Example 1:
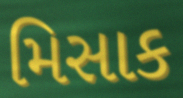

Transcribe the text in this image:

મિસાક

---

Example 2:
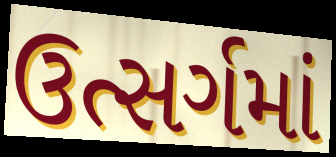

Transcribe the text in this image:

ઉત્સર્ગમાં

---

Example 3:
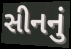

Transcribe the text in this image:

સીનનું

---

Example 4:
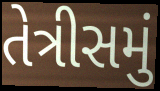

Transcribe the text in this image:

તેત્રીસમું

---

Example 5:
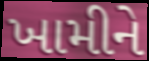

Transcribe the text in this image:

ખામીને